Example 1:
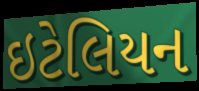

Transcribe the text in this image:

ઇટેલિયન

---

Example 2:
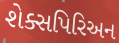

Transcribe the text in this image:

શેક્સપિરિઅન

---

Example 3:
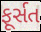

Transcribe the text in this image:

ફૂર્સત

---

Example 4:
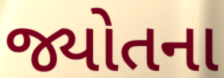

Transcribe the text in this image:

જ્યોતના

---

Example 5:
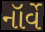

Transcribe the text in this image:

નૉર્વે